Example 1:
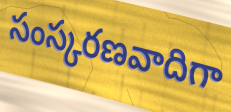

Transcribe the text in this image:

సంస్కరణవాదిగా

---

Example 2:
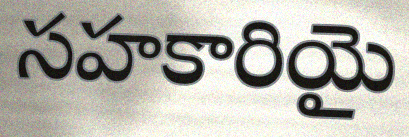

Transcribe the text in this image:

సహకారియై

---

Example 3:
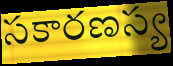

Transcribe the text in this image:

సకారణస్య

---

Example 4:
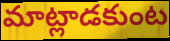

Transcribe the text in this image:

మాట్లాడకుంట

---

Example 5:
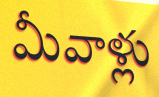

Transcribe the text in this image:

మీవాళ్లు